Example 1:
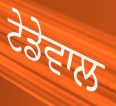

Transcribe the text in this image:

ਟੇਡੇਵਾਲ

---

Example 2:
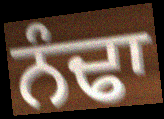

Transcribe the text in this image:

ਨੰਢਾ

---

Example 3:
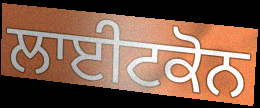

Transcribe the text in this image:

ਲਾਈਟਕੋਨ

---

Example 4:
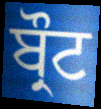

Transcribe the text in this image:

ਬ੍ਰੌਟ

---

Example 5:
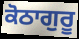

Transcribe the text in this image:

ਕੋਠਾਗੁਰੂ